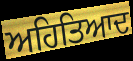
ਅਹਿਤਿਆਦ